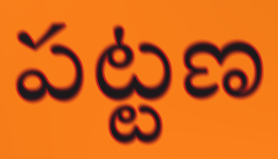
పట్టణ